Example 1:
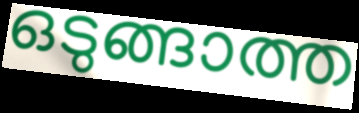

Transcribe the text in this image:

ഒടുങ്ങാത്ത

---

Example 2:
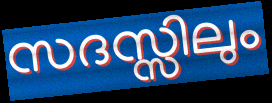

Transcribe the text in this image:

സദസ്സിലും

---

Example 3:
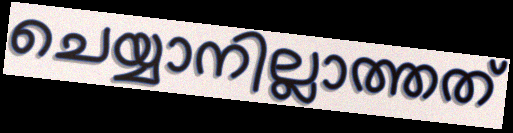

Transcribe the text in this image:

ചെയ്യാനില്ലാത്തത്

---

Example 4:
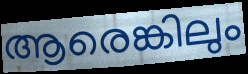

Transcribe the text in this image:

ആരെങ്കിലും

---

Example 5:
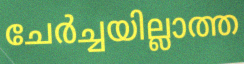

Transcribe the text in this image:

ചേർച്ചയില്ലാത്ത